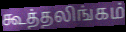
கூத்தலிங்கம்